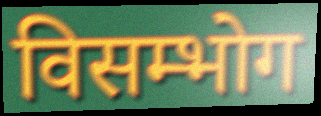
विसम्भोग